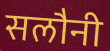
सलौनी